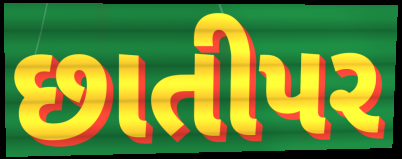
છાતીપર